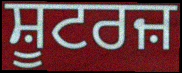
ਸ਼ੂਟਰਜ਼